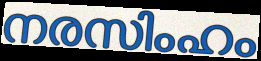
നരസിംഹം